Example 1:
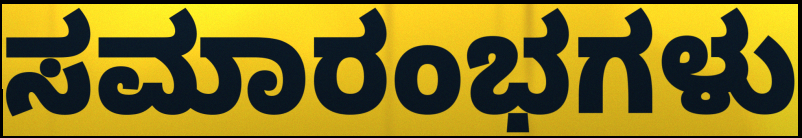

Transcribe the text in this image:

ಸಮಾರಂಭಗಳು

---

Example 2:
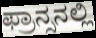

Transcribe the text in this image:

ಫ್ರಾನ್ಸನಲ್ಲಿ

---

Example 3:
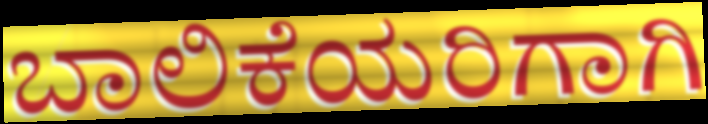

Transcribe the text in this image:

ಬಾಲಿಕೆಯರಿಗಾಗಿ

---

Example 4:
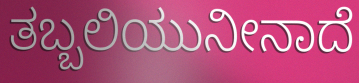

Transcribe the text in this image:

ತಬ್ಬಲಿಯುನೀನಾದೆ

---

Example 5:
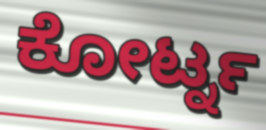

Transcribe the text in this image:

ಕೋರ್ಟ್ನ